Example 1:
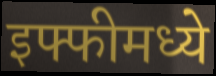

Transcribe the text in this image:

इफ्फीमध्ये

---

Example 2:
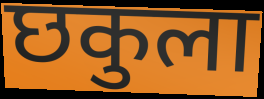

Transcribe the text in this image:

छकुला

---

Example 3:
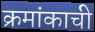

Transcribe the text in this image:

क्रमांकाची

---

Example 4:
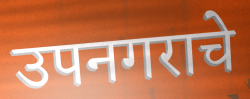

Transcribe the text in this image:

उपनगराचे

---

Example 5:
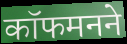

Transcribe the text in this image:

कॉफमनने